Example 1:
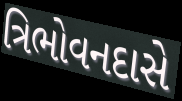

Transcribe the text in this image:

ત્રિભોવનદાસે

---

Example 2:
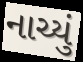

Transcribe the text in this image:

નાચ્યું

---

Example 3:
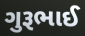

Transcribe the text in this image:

ગુરૂભાઈ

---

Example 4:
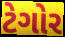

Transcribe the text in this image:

ટેગોર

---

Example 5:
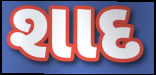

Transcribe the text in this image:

શાદ